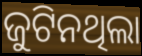
ଜୁଟିନଥିଲା